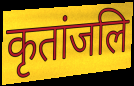
कृतांजलि